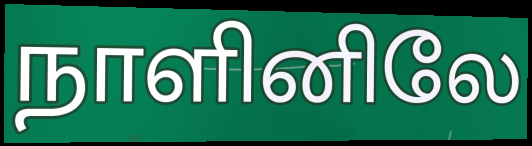
நாளினிலே